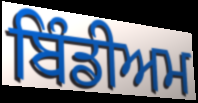
ਬਿੰਡੀਅਮ